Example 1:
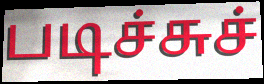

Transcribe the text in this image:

படிச்சுச்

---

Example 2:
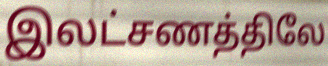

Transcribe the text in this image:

இலட்சணத்திலே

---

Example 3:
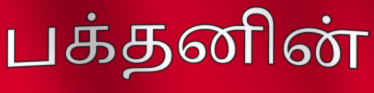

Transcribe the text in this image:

பக்தனின்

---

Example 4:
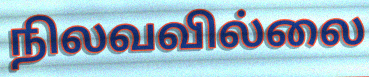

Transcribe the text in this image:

நிலவவில்லை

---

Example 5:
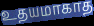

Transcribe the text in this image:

உதயமாகாத